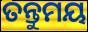
ତନ୍ତୁମୟ